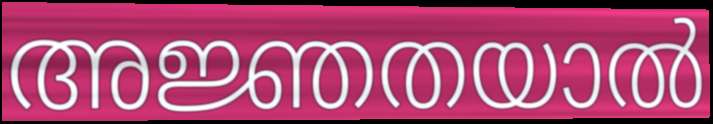
അജ്ഞതയാൽ